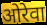
ओरेवा